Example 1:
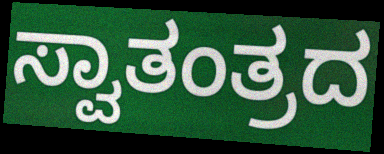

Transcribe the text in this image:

ಸ್ವಾತಂತ್ರದ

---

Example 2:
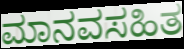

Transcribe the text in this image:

ಮಾನವಸಹಿತ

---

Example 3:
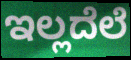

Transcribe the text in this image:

ಇಲ್ಲದೆಲೆ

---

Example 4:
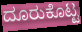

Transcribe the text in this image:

ದೂರುಕೊಟ್ಟ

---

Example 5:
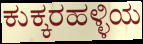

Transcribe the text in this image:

ಕುಕ್ಕರಹಳ್ಳಿಯ